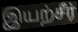
இயற்சீர்